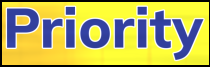
Priority